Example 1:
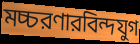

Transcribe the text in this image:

মচ্চরণারবিন্দযুগ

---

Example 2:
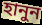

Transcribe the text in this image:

হানুন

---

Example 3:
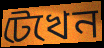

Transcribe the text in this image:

টেখেন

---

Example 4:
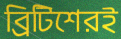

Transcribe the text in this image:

ব্রিটিশেরই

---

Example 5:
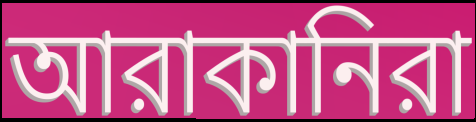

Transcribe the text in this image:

আরাকানিরা